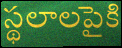
స్థలాలపైకి